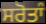
ਸਰੋਤਾੰ